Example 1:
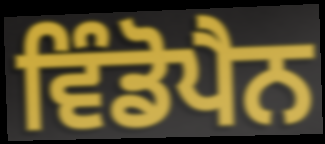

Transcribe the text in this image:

ਵਿੰਡੋਪੈਨ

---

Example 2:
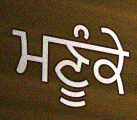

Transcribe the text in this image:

ਮਣੂੰਕੇ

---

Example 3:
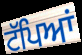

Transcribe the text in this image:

ਟੱਪਿਆਂ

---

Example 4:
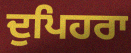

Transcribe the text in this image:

ਦੁਪਿਹਰਾ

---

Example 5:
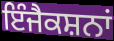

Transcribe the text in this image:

ਇੰਜੈਕਸ਼ਨਾਂ